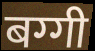
बग्‍गी